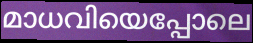
മാധവിയെപ്പോലെ